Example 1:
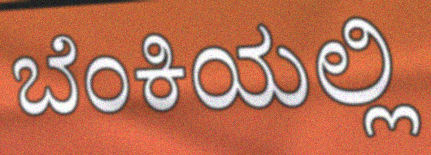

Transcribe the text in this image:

ಬೆಂಕಿಯಲ್ಲಿ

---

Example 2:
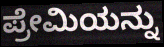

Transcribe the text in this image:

ಪ್ರೇಮಿಯನ್ನು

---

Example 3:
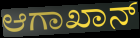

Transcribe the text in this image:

ಆಗಾಖಾನ್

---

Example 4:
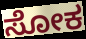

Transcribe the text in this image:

ಸೋಕ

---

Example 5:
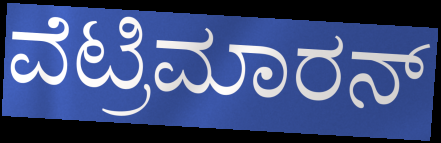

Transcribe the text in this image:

ವೆಟ್ರಿಮಾರನ್